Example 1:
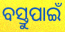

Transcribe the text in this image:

ବସ୍ତୁପାଇଁ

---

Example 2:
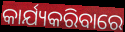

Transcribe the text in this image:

କାର୍ଯ୍ୟକରିବାରେ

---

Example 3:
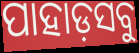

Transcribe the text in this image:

ପାହାଡ଼ସବୁ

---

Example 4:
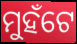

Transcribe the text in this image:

ମୁହଁଟେ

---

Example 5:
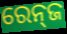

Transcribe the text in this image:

ରେନ୍‍ଜ